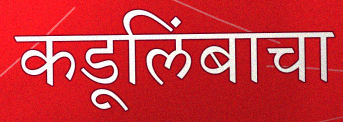
कडूलिंबाचा